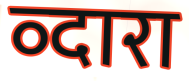
व्दारा